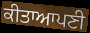
ਕੀਤਾਆਪਣੀ